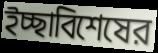
ইচ্ছাবিশেষের